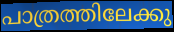
പാത്രത്തിലേക്കു